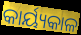
କାର୍ୟ୍ୟକାଳ